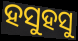
ହସୁହସୁ